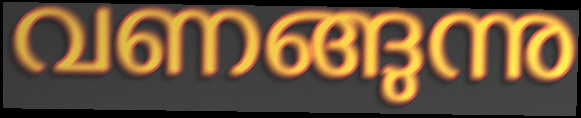
വണങ്ങുന്നു